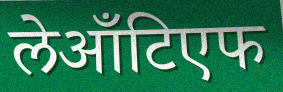
लेआँटिएफ